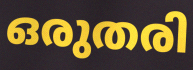
ഒരുതരി